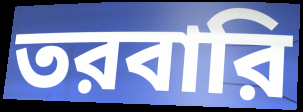
তরবারি